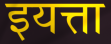
इयत्ता